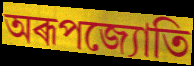
অৰূপজ্যোতি